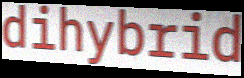
dihybrid